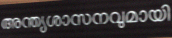
അന്ത്യശാസനവുമായി